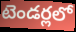
టెండర్లలో